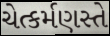
ચેત્કર્મણસ્તે